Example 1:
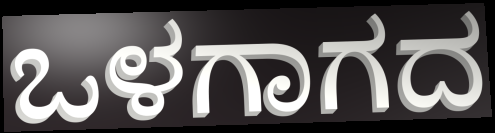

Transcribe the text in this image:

ಒಳಗಾಗದ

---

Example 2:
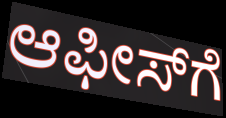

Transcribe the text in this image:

ಆಫೀಸ್‍ಗೆ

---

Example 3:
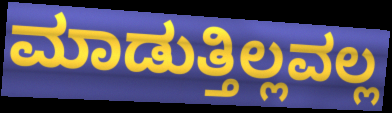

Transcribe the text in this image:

ಮಾಡುತ್ತಿಲ್ಲವಲ್ಲ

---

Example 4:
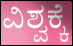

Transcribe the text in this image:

ವಿಶ್ವಕ್ಕೆ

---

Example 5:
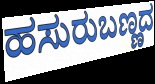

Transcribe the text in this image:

ಹಸುರುಬಣ್ಣದ